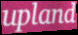
upland